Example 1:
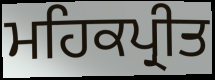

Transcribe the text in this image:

ਮਹਿਕਪ੍ਰੀਤ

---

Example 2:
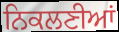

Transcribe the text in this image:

ਨਿਕਲਣੀਆਂ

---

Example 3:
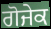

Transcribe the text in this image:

ਗੋਜੇਕ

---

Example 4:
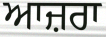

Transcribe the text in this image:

ਆਜ਼ਰਾ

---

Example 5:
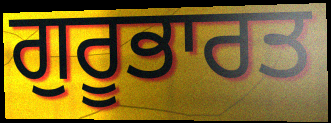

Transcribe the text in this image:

ਗੁਰੂਭਾਰਤ